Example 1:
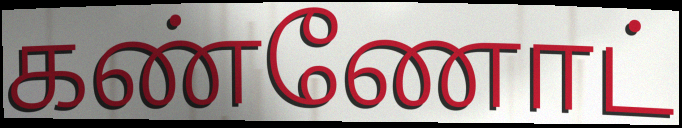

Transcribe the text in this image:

கண்ணோட்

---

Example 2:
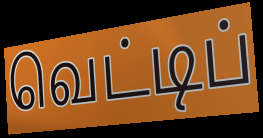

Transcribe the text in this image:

வெட்டிப்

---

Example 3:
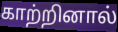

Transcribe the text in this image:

காற்றினால்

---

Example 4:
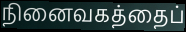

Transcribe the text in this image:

நினைவகத்தைப்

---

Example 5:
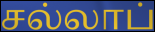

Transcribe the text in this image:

சல்லாப்